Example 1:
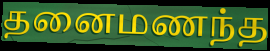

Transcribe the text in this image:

தனைமணந்த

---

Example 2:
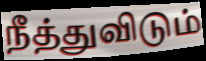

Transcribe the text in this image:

நீத்துவிடும்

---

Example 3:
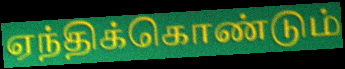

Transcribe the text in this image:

ஏந்திக்கொண்டும்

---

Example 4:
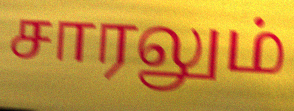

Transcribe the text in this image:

சாரலும்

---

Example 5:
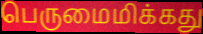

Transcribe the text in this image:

பெருமைமிக்கது